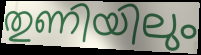
തുണിയിലും